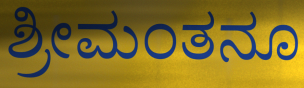
ಶ್ರೀಮಂತನೂ